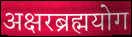
अक्षरब्रह्मयोग